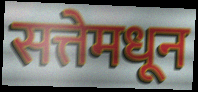
सत्तेमधून